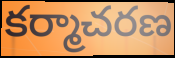
కర్మాచరణ